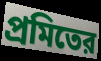
প্রমিতের